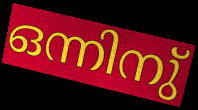
ഒന്നിനു്